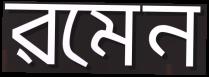
ৱমেন